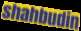
shahbudin